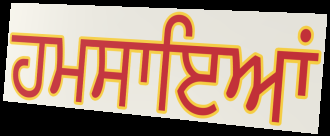
ਹਮਸਾਇਆਂ